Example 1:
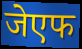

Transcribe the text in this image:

जेएफ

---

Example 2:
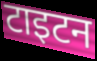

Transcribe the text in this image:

टाइटन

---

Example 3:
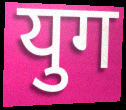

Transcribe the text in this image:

युग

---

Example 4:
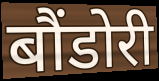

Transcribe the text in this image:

बौंडोरी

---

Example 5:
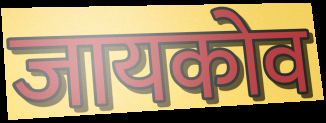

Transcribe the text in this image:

जायकोव